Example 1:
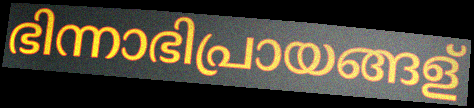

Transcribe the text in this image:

ഭിന്നാഭിപ്രായങ്ങള്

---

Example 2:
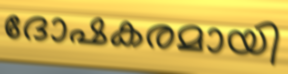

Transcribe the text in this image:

ദോഷകരമായി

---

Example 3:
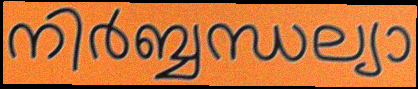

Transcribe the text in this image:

നിർബ്ബന്ധല്യാ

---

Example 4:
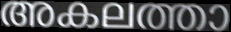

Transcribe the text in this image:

അകലത്താ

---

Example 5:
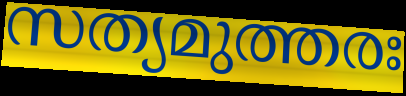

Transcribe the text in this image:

സത്യമുത്തരഃ